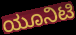
ಯೂನಿಟಿ